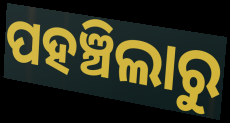
ପହଞ୍ଚିଲାରୁ